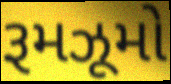
રૂમઝૂમો